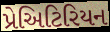
પ્રેઅિટિરિયન